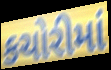
કચોરીમાં